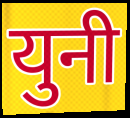
युनी